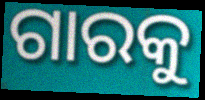
ଗାରକୁ